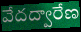
వేదద్వారేణ